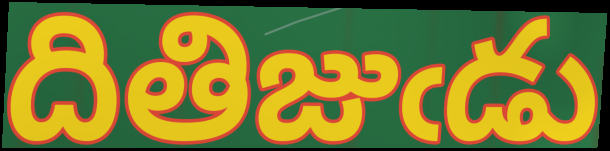
దితిజుఁడు